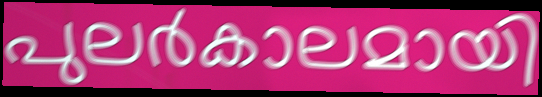
പുലർകാലമായി